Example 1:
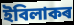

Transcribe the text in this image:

ইবিলাকৰ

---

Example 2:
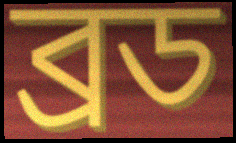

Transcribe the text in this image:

ব্ৰড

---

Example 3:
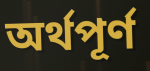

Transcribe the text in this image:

অৰ্থপূৰ্ণ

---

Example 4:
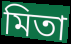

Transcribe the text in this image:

মিতা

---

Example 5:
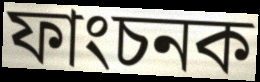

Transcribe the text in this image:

ফাংচনক